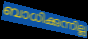
ബാധിക്കുന്നില്ല